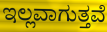
ಇಲ್ಲವಾಗುತ್ತವೆ